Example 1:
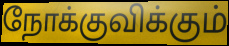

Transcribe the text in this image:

நோக்குவிக்கும்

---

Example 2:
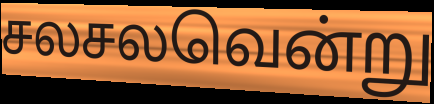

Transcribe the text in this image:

சலசலவென்று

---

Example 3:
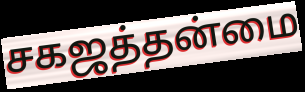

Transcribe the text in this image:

சகஜத்தன்மை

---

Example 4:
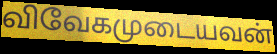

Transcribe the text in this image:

விவேகமுடையவன்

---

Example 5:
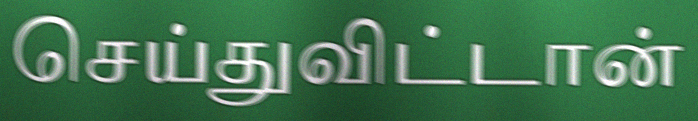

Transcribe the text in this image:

செய்துவிட்டான்